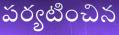
పర్యటించిన